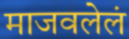
माजवलेलं